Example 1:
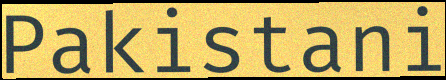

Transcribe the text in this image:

Pakistani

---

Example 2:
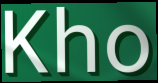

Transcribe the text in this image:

Kho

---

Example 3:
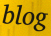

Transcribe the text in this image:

blog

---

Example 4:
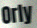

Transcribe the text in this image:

Orly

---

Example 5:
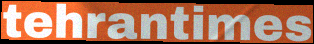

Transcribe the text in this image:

tehrantimes